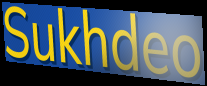
Sukhdeo